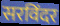
सरविंदर